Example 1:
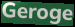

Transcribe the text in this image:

Geroge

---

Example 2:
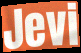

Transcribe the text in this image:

Jevi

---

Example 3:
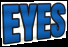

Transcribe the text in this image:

EYES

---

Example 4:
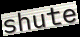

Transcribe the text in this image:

shute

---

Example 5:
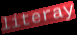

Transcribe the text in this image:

literay